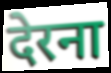
देरना